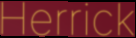
Herrick